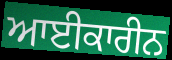
ਆਈਕਾਰੀਨ